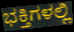
ಭಕ್ತಿಗಳಲ್ಲಿ